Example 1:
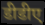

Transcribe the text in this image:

डीडीए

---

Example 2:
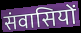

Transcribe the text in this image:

संवासियों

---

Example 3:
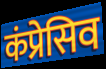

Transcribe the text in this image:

कंप्रेसिव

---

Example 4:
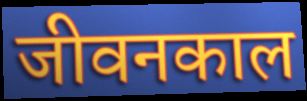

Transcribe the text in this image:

जीवनकाल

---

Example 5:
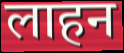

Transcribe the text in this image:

लाहन